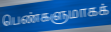
பெண்களுமாகக்